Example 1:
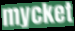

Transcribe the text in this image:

mycket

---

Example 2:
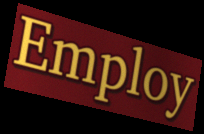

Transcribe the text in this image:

Employ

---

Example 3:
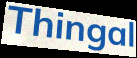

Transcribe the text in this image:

Thingal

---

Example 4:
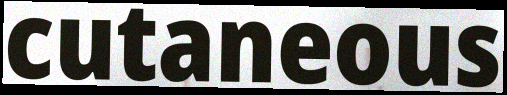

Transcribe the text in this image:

cutaneous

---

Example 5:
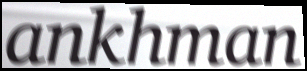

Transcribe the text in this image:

ankhman